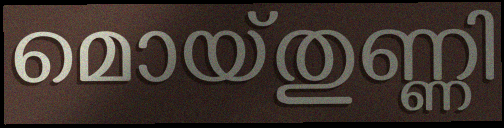
മൊയ്തുണ്ണി